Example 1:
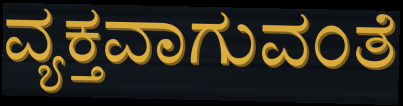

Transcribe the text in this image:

ವ್ಯಕ್ತವಾಗುವಂತೆ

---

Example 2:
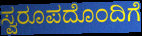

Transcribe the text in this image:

ಸ್ವರೂಪದೊಂದಿಗೆ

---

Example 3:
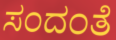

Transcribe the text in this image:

ಸಂದಂತೆ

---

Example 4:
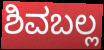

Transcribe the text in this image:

ಶಿವಬಲ್ಲ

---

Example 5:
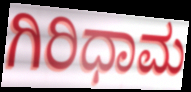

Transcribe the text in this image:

ಗಿರಿಧಾಮ